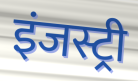
इंजस्ट्री